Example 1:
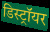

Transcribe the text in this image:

डिस्‍ट्रॉयर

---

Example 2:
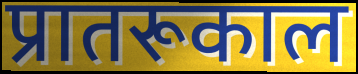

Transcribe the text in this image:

प्रातरूकाल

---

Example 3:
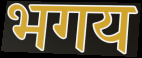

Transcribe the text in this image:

भगय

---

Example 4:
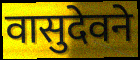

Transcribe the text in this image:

वासुदेवने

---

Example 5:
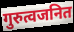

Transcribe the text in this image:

गुरुत्वजनित